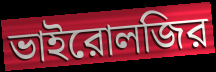
ভাইরোলজির